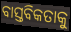
ବାସ୍ତବିକତାକୁ